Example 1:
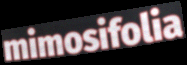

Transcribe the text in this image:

mimosifolia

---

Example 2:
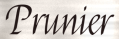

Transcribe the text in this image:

Prunier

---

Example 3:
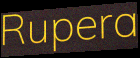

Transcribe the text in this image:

Rupera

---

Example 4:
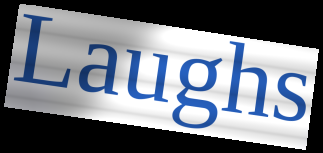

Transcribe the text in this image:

Laughs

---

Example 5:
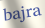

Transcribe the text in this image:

bajra